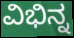
ವಿಭಿನ್ನ